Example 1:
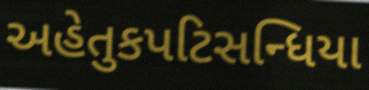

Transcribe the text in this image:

અહેતુકપટિસન્ધિયા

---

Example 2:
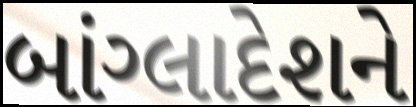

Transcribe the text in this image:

બાંગ્લાદેશને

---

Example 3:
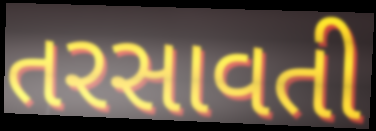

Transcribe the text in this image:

તરસાવતી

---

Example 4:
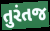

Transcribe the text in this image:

તુરંતજ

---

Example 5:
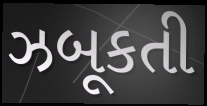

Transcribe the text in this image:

ઝબૂકતી